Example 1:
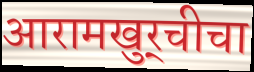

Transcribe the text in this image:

आरामखुर्चीचा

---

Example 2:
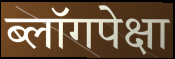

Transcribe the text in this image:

ब्लॉगपेक्षा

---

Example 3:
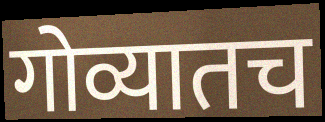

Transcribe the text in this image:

गोव्यातच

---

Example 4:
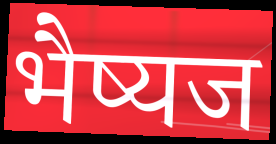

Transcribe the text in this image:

भैष्यज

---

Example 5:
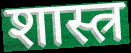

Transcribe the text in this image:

शास्त्र